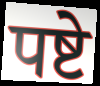
पष्टे